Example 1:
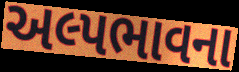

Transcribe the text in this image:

અલ્પભાવના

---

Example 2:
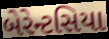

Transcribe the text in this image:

બેરેન્ટસિયા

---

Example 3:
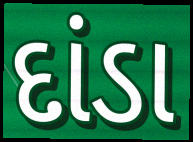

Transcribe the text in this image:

દાંડા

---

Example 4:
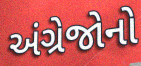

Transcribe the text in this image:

અંગ્રેજોનો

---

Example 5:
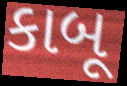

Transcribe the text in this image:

કાબૂ